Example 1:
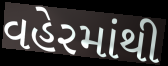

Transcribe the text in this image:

વહેરમાંથી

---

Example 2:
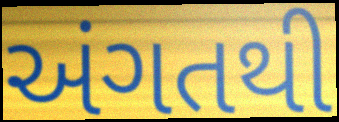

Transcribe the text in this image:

અંગતથી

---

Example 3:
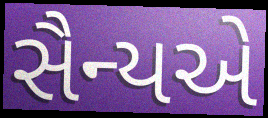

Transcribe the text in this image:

સૈન્યએ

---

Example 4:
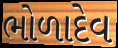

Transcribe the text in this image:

ભોળાદેવ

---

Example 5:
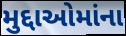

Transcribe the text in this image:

મુદ્દાઓમાંના